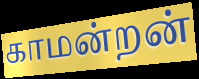
காமன்றன்